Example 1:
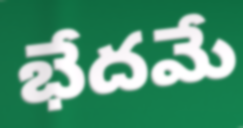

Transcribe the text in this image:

భేదమే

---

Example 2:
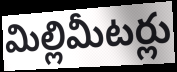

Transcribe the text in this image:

మిల్లిమీటర్లు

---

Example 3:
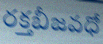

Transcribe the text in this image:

రక్తబీజవధో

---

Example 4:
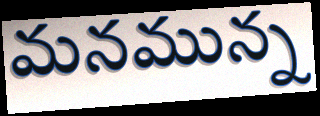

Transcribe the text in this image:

మనమున్న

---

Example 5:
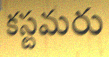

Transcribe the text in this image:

కస్టమరు